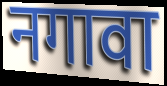
नगावा